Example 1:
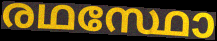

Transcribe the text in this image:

രഥസ്ഥോ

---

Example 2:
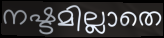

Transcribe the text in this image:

നഷ്ടമില്ലാതെ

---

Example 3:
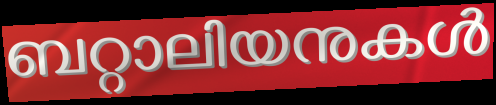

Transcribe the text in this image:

ബറ്റാലിയനുകൾ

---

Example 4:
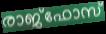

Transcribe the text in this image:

രാജ്ഫോസ്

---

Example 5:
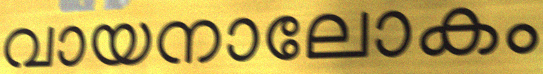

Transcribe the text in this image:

വായനാലോകം